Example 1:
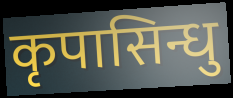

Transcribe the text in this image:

कृपासिन्धु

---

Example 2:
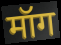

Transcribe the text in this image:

मॉग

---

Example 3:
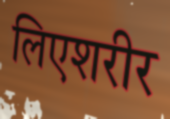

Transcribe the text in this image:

लिएशरीर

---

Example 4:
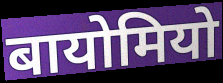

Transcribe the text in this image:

बायोमियो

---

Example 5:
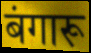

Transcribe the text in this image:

बंगारू